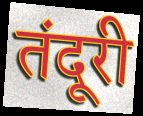
तंदूरी